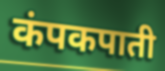
कंपकपाती